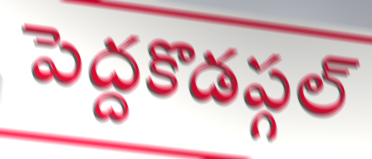
పెద్దకొడప్గల్